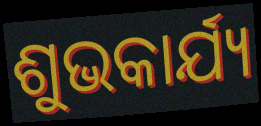
ଶୁଭକାର୍ଯ୍ୟ